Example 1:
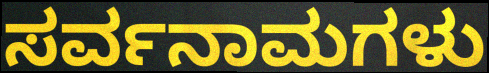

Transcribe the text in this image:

ಸರ್ವನಾಮಗಳು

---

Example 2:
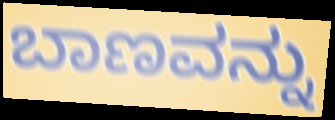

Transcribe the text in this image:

ಬಾಣವನ್ನು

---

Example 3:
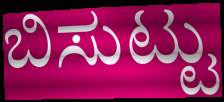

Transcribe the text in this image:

ಬಿಸುಟ್ಟು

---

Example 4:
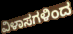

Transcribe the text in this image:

ವಿಳಾಸಗಳಿಂದ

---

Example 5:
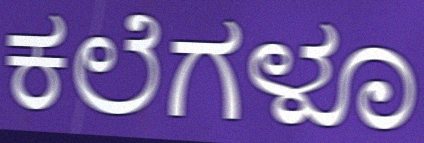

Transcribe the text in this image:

ಕಲೆಗಳೂ